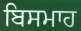
ਬਿਸਮਾਹ